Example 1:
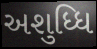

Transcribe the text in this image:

અશુધ્ધિ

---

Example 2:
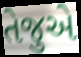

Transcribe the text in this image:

તેજુએ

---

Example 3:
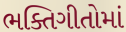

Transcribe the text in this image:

ભક્તિગીતોમાં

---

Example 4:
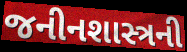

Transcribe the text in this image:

જનીનશાસ્ત્રની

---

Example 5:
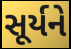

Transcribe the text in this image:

સૂર્યને